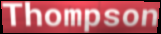
Thompson